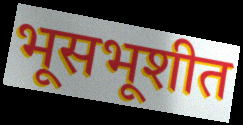
भूसभूशीत